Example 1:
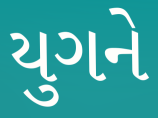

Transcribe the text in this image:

યુગને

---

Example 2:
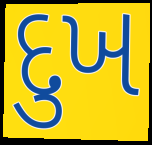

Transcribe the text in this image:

દુખ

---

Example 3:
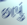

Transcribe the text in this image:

છાપું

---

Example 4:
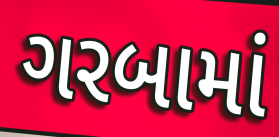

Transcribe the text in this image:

ગરબામાં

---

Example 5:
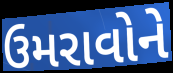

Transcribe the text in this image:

ઉમરાવોને